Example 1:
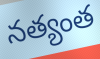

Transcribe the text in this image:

నత్యంత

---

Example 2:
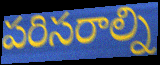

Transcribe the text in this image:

పరిసరాల్ని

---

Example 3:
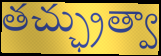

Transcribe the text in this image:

తచ్ఛ్రుత్వా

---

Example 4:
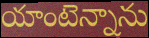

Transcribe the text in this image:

యాంటెన్నాను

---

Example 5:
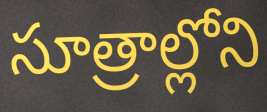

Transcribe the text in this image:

సూత్రాల్లోని